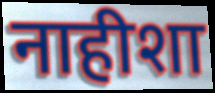
नाहीशा